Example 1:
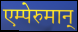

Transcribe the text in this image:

एम्पेरुमान्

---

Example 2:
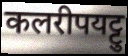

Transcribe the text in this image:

कलरीपयट्टु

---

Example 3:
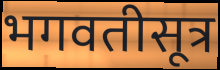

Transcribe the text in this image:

भगवतीसूत्र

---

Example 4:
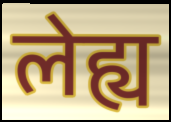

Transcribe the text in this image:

लेह्य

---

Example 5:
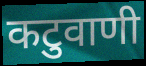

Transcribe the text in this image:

कटुवाणी